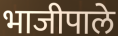
भाजीपाले